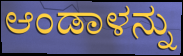
ಆಂಡಾಳನ್ನು